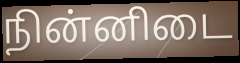
நின்னிடை